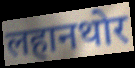
लहानथोर